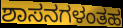
ಶಾಸನಗಳಂತಹ